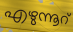
എഴുന്നൂറ്